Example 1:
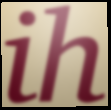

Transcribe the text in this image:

ih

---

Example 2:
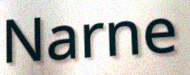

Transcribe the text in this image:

Narne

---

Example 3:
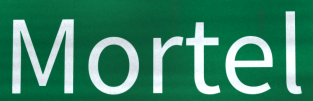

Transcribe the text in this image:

Mortel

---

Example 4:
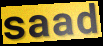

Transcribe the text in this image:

saad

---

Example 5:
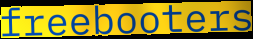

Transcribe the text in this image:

freebooters